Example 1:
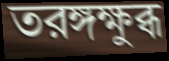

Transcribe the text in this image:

তরঙ্গক্ষুব্ধ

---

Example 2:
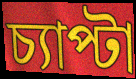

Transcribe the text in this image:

চ্যাপ্টা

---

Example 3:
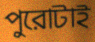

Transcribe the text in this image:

পুরোটাই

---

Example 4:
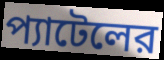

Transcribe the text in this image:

প্যাটেলের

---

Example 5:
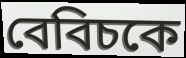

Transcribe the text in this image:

বেবিচকে